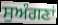
ਸੁਅੰਗਣਾਂ